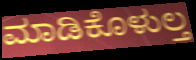
ಮಾಡಿಕೊಳುಲ್ತ